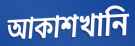
আকাশখানি